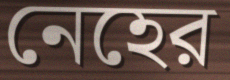
নেহের